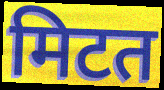
मिटत